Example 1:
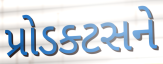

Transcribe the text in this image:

પ્રોડક્ટસને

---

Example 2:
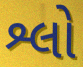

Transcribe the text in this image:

શ્લો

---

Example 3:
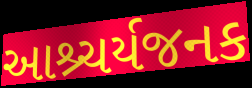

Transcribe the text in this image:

આશ્ર્ચર્યજનક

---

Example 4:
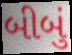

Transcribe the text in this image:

બીબું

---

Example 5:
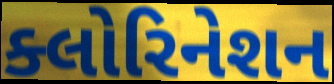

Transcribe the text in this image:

ક્લોરિનેશન